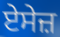
ਏਸੇਜ਼